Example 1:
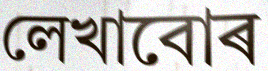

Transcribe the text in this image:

লেখাবোৰ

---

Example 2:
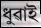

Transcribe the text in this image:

ধুৱাই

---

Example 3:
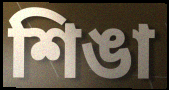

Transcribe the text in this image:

শিঙা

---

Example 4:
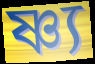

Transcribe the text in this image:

ষ্ণ্য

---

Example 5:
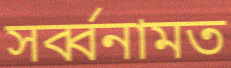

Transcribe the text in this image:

সৰ্ব্বনামত